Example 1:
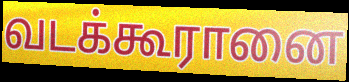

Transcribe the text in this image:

வடக்கூரானை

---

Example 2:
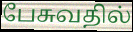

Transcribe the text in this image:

பேசுவதில்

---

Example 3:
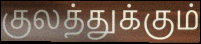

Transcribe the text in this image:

குலத்துக்கும்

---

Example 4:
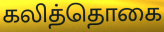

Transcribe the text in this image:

கலித்தொகை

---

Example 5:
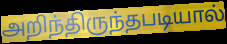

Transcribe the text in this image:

அறிந்திருந்தபடியால்